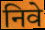
निवे